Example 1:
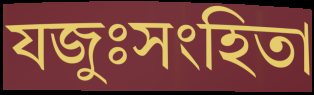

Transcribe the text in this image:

যজুঃসংহিতা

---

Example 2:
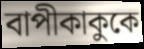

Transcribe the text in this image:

বাপীকাকুকে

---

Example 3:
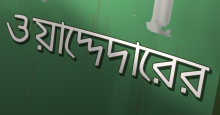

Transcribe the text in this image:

ওয়াদ্দেদারের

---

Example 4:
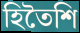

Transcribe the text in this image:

হিতৈশি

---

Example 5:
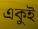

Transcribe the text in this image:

একুই